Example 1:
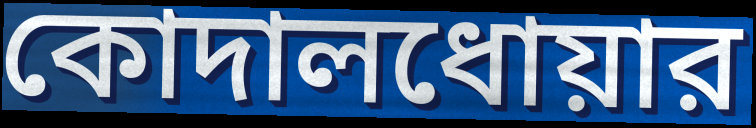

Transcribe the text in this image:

কোদালধোয়ার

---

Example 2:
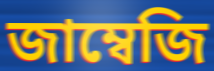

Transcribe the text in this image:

জাম্বেজি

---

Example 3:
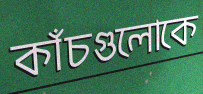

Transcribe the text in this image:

কাঁচগুলোকে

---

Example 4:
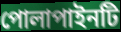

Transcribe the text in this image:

পোলাপাইনটি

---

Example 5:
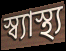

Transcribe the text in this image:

স্ব্যাস্থ্য